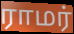
ராமர்